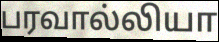
பரவால்லியா